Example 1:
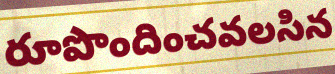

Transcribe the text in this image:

రూపొందించవలసిన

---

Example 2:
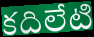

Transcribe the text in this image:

కదిలేటి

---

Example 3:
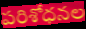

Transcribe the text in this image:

పరిశోధనల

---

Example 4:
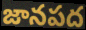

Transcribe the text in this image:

జానపద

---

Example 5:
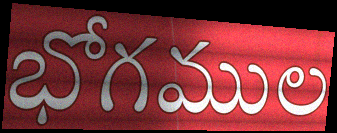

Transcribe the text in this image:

భోగముల